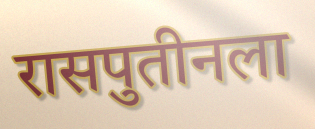
रासपुतीनला